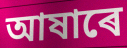
আষাৰে